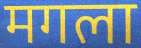
मगला